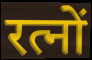
रत्‍नों